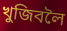
খুজিবলৈ